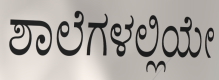
ಶಾಲೆಗಳಲ್ಲಿಯೇ